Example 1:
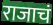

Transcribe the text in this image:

राजाचं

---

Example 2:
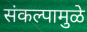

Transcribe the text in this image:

संकल्पामुळे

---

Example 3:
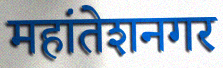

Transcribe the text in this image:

महांतेशनगर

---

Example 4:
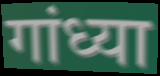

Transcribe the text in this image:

गांध्या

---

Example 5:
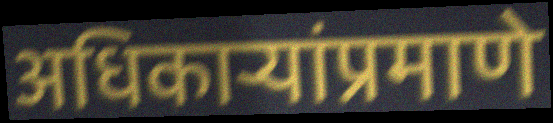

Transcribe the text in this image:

अधिकाऱ्यांप्रमाणे